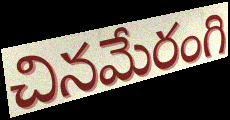
చినమేరంగి